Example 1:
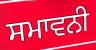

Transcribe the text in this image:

ਸਮਾਵਨੀ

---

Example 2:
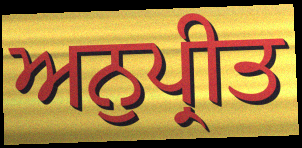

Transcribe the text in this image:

ਅਨੁਪ੍ਰੀਤ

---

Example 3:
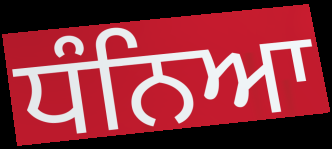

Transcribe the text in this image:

ਧੰਨਿਆ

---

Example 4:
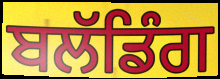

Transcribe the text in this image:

ਬਲੱਡਿੰਗ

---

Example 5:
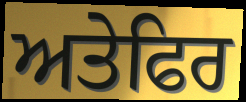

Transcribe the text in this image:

ਅਤੇਫਿਰ